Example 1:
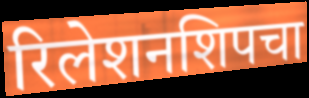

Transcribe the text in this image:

रिलेशनशिपचा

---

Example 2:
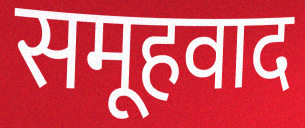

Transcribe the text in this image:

समूहवाद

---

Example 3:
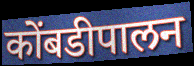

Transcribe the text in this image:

कोंबडीपालन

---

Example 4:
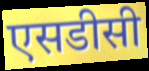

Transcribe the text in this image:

एसडीसी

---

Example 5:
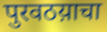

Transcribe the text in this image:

पुरवठय़ाचा